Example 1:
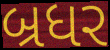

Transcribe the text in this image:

બ્રધર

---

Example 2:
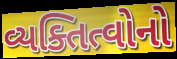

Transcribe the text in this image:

વ્યક્તિત્વોનો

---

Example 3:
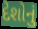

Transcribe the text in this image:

દેશોનું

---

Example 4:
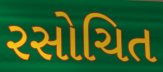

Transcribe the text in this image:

રસોચિત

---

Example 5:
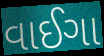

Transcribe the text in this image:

વાઈગા